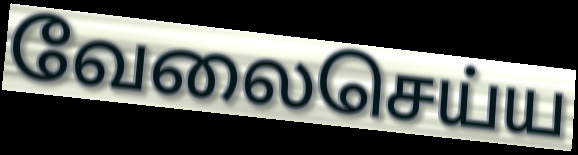
வேலைசெய்ய